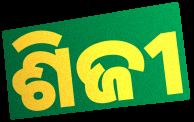
ଶିଜୀ